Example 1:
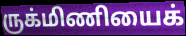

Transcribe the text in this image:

ருக்மிணியைக்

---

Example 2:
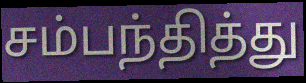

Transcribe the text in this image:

சம்பந்தித்து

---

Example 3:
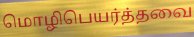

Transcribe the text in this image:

மொழிபெயர்த்தவை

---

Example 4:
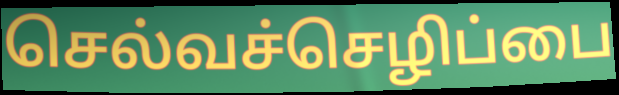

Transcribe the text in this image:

செல்வச்செழிப்பை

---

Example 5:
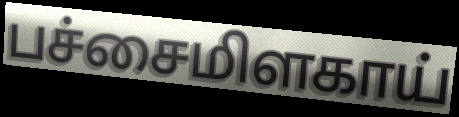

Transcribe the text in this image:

பச்சைமிளகாய்